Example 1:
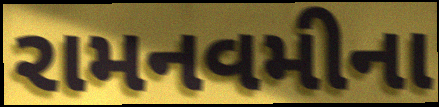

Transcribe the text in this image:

રામનવમીના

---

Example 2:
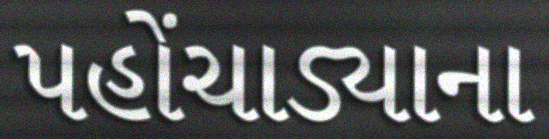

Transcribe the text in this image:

પહોંચાડ્યાના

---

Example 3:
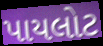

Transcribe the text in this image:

પાયલોટ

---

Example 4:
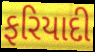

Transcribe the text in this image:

ફરિયાદી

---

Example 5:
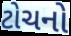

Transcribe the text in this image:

ટોચનો